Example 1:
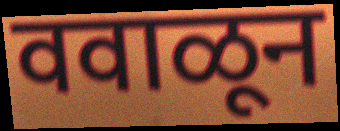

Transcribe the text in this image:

ववाळून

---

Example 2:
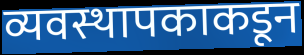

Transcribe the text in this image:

व्यवस्थापकाकडून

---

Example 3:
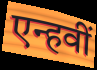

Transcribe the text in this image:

एन्हवीं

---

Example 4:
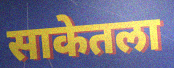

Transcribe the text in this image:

साकेतला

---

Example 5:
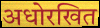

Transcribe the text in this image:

अधोरखित